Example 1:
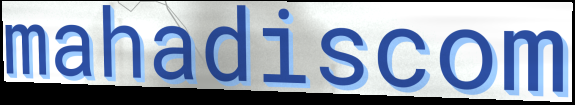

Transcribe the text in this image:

mahadiscom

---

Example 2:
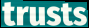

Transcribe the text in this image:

trusts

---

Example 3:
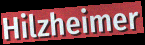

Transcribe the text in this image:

Hilzheimer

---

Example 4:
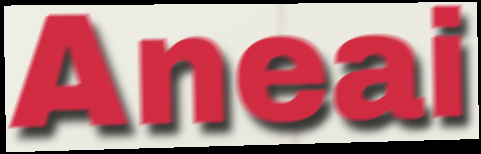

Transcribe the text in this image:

Aneai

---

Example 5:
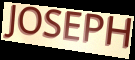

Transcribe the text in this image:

JOSEPH